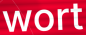
wort